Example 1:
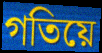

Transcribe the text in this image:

গতিয়ে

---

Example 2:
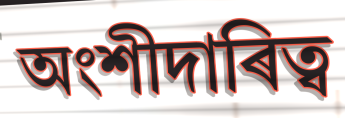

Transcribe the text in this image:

অংশীদাৰিত্ব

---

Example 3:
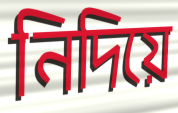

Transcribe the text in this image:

নিদিয়ে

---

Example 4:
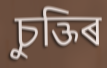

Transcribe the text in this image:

চুক্তিৰ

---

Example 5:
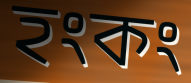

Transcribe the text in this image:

হংকং